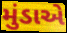
મુંડાએ